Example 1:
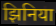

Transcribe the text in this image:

झिनिया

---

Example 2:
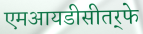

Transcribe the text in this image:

एमआयडीसीतर्फे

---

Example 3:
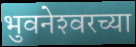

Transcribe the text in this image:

भुवनेश्वरच्या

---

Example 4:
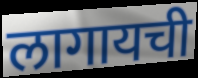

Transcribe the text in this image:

लागायची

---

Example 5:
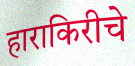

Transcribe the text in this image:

हाराकिरीचे